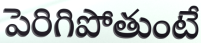
పెరిగిపోతుంటే